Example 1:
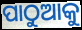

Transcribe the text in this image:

ପାଠୁଆକୁ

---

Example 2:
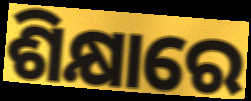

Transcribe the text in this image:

ଶିକ୍ଷାରେ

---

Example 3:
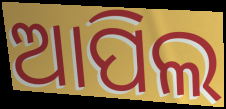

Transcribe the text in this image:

ଆପିଲ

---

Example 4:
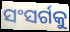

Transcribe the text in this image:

ସଂସର୍ଗକୁ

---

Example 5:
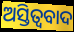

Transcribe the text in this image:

ଅସ୍ତିତ୍ବବାଦ